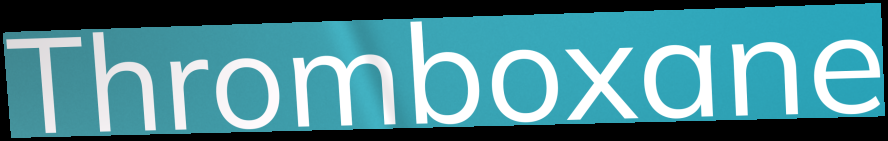
Thromboxane